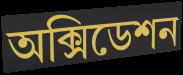
অক্সিডেশন